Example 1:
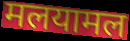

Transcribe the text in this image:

मलयामल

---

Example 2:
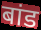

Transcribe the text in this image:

बांड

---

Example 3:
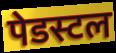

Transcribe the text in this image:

पेडस्टल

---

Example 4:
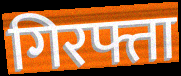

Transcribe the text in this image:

गिरफ्ता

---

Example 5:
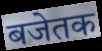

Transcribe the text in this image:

बजेतक